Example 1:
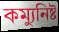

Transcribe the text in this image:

কম্যুনিষ্ট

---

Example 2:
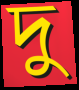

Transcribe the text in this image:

দু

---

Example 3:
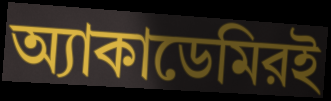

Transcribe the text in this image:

অ্যাকাডেমিরই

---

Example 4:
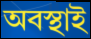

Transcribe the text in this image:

অবস্থাই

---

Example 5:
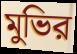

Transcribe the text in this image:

মুভির